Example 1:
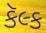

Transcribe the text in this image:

કૅલ્ક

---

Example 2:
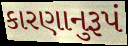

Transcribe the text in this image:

કારણાનુરૂપં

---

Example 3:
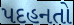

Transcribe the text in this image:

પદહનતો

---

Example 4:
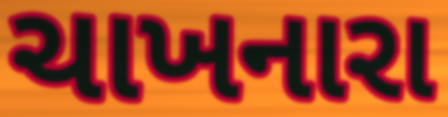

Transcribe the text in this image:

ચાખનારા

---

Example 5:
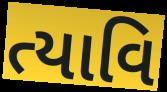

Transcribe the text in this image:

ત્યાવિ